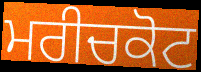
ਮਰੀਚਕੋਟ